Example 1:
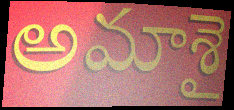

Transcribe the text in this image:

అమాశై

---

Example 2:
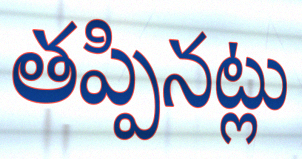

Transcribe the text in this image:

తప్పినట్లు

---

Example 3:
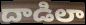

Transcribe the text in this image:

దాడిలా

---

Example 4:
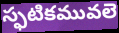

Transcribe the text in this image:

స్ఫటికమువలె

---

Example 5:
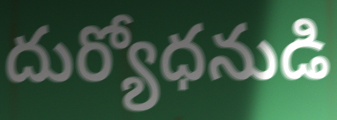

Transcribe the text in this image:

దుర్యోధనుడి